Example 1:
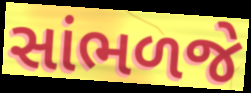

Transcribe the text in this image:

સાંભળજે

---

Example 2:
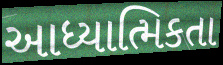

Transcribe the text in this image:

આધ્યાત્મિકતા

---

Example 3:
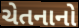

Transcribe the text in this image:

ચેતનાનો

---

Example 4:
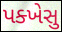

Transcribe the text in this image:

પક્ખેસુ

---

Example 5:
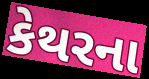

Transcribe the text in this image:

કેથરના